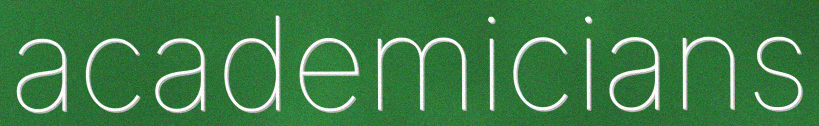
academicians